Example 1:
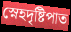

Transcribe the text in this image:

স্নেহদৃষ্টিপাত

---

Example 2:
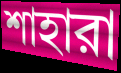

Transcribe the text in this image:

শাহারা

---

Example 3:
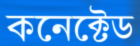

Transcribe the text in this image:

কনেক্টেড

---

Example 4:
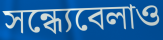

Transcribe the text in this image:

সন্ধ্যেবেলাও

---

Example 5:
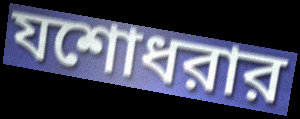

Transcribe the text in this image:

যশোধরার